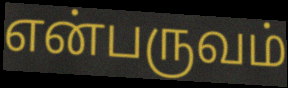
என்பருவம்